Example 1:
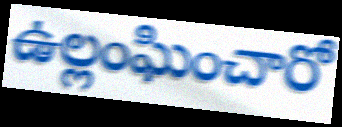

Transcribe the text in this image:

ఉల్లంఘించారో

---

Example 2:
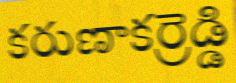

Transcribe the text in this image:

కరుణాకర్రెడ్డి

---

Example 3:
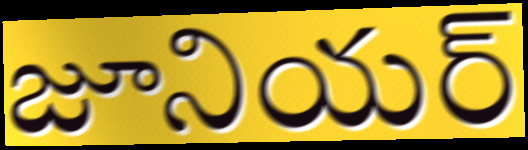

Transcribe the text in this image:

జూనియర్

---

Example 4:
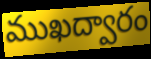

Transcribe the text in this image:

ముఖద్వారం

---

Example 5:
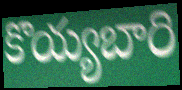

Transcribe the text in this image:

కొయ్యబారి